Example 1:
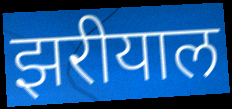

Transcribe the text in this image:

झरीयाल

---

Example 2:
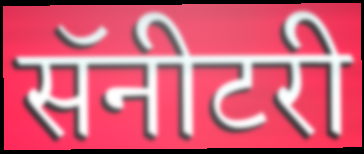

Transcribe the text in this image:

सॅनीटरी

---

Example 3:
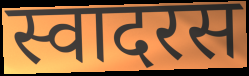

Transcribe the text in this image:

स्वादरस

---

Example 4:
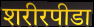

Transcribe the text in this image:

शरीरपीडा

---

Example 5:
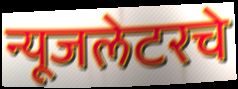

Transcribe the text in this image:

न्यूजलेटरचे